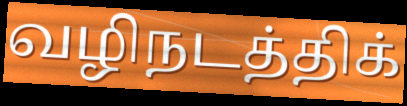
வழிநடத்திக்